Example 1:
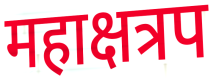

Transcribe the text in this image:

महाक्षत्रप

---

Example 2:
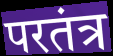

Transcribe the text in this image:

परतंत्र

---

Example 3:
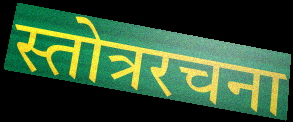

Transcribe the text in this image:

स्तोत्ररचना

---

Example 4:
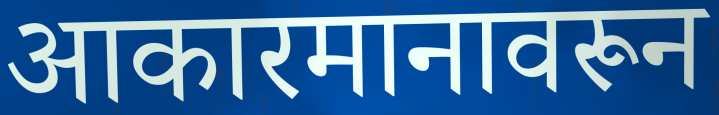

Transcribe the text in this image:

आकारमानावरून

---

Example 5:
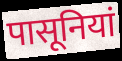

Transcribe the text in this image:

पासूनियां